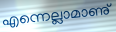
എന്നെല്ലാമാണു്